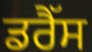
ਡਰੈੱਸ